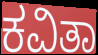
ಕವಿತಾ